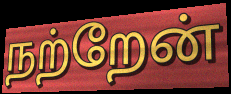
நற்றேன்